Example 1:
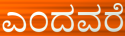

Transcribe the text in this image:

ಎಂದವರೆ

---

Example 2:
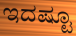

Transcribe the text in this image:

ಇದಷ್ಟೂ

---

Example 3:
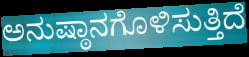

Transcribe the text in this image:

ಅನುಷ್ಠಾನಗೊಳಿಸುತ್ತಿದೆ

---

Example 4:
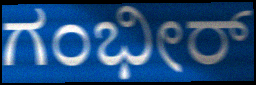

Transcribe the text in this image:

ಗಂಭೀರ್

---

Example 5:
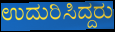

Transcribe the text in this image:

ಉದುರಿಸಿದ್ದರು